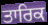
ਤਾਰਿਕ